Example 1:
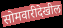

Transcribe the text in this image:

सोमवारीदेखील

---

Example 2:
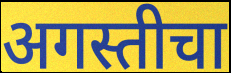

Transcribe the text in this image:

अगस्तीचा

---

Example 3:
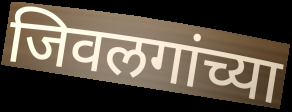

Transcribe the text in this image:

जिवलगांच्या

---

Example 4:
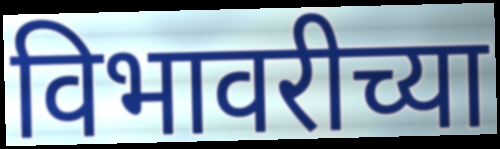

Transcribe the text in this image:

विभावरीच्या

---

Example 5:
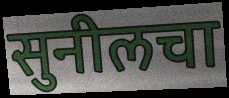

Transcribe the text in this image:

सुनीलचा